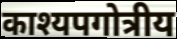
काश्यपगोत्रीय